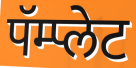
पॅम्प्लेट